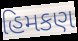
હિમકણ